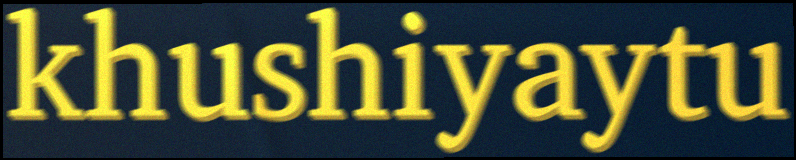
khushiyaytu